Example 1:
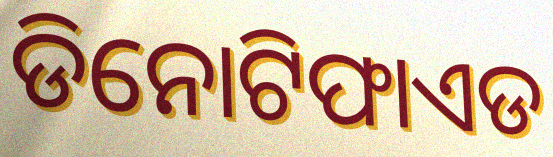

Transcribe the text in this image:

ଡିନୋଟିଫାଏଡ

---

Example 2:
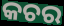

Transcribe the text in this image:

କଚର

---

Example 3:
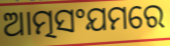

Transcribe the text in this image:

ଆତ୍ମସଂଯମରେ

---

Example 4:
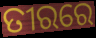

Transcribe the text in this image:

ତୀରରେ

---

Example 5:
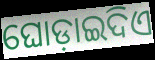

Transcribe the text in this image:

ଘୋଡ଼ାଇଦିଏ